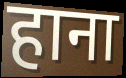
हाना